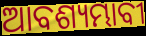
ଆବଶ୍ୟମ୍ଭାବୀ